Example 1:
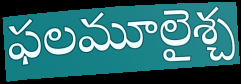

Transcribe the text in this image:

ఫలమూలైశ్చ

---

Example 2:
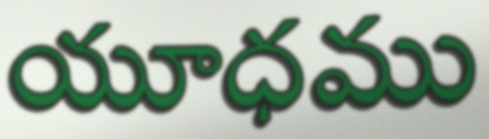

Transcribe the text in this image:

యూధము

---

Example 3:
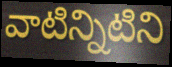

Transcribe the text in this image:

వాటిన్నిటిని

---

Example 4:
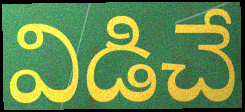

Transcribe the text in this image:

విడిచే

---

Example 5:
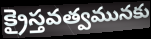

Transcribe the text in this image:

క్రైస్తవత్వమునకు